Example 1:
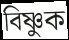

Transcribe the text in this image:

বিষ্ণুক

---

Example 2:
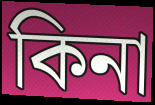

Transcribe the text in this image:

কিনা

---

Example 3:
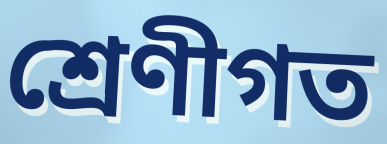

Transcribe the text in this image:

শ্ৰেণীগত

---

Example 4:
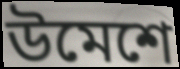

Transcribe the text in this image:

উমেশে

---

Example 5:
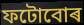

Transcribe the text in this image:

ফটোবোৰ